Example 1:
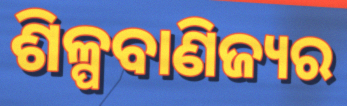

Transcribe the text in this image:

ଶିଳ୍ପବାଣିଜ୍ୟର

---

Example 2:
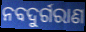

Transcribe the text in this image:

ନବଦୁର୍ଗରାଣ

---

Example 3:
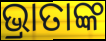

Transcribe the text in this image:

ଭ୍ରାତାଙ୍କ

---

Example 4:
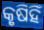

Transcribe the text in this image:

କୃଷିହିଁ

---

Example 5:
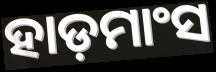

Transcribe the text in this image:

ହାଡ଼ମାଂସ